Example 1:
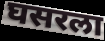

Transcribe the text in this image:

घसरला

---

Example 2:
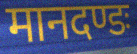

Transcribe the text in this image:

मानदण्डः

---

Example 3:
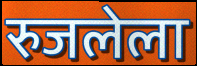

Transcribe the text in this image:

रुजलेला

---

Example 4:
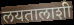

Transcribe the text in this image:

लयतालाशी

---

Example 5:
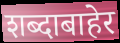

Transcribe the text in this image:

शब्दाबाहेर